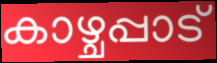
കാഴ്ചപ്പാട്